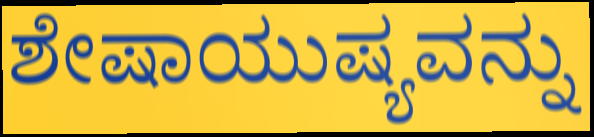
ಶೇಷಾಯುಷ್ಯವನ್ನು